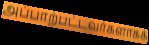
அப்பாற்பட்டவர்களாகக்